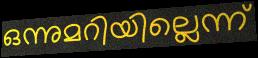
ഒന്നുമറിയില്ലെന്ന്